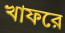
খাফরে